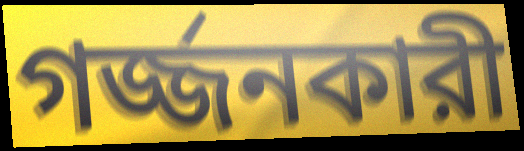
গর্জ্জনকারী